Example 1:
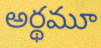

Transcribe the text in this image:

అర్థమూ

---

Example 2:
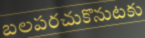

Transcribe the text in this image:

బలపరచుకొనుటకు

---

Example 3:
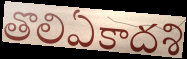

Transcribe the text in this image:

తొలిఏకాదశి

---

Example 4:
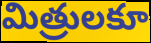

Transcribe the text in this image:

మిత్రులకూ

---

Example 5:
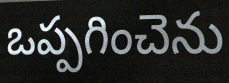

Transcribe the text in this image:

ఒప్పగించెను